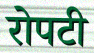
रोपटी